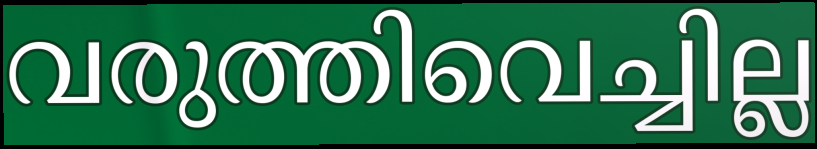
വരുത്തിവെച്ചില്ല